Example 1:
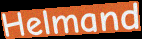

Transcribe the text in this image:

Helmand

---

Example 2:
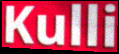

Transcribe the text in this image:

Kulli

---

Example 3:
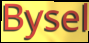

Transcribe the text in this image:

Bysel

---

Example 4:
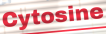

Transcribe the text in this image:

Cytosine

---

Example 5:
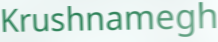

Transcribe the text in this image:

Krushnamegh